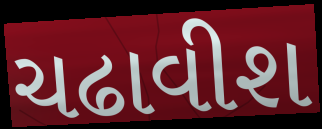
ચઢાવીશ